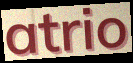
atrio